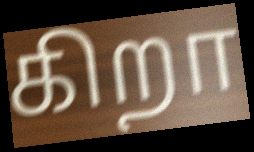
கிறா